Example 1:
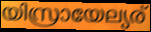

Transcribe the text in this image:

യിസ്രായേല്യര്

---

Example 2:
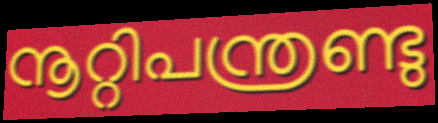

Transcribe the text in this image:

നൂറ്റിപന്ത്രണ്ടു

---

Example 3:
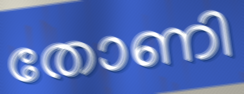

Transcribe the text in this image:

തോണി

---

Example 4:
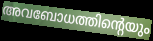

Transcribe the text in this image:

അവബോധത്തിന്റെയും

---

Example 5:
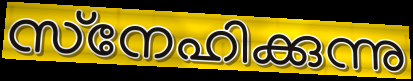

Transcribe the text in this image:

സ്‌നേഹിക്കുന്നു